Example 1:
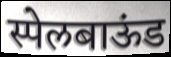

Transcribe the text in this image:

स्पेलबाऊंड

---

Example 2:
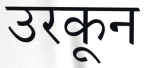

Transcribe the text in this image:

उरकून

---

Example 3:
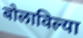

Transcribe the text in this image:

बोलाविल्या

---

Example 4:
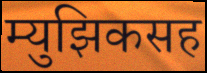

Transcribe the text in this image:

म्युझिकसह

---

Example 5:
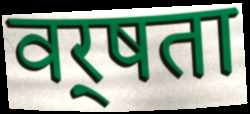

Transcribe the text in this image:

वर्षता